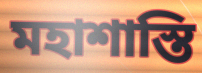
মহাশাস্তি